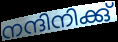
നന്ദിനിക്കു്